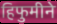
हिफुमीने